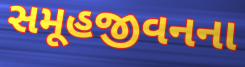
સમૂહજીવનના